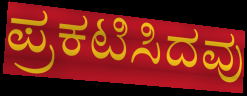
ಪ್ರಕಟಿಸಿದವು